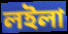
লইলা